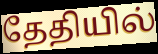
தேதியில்